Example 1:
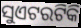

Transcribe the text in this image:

ସୁଏଟରଟିକି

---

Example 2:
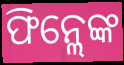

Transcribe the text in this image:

ଫିନ୍ଲେଙ୍କ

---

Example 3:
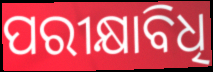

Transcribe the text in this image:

ପରୀକ୍ଷାବିଧି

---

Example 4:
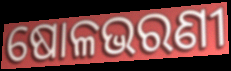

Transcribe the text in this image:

ଷୋଳଭରଣୀ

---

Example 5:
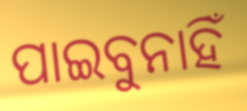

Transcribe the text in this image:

ପାଇବୁନାହିଁ